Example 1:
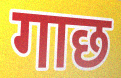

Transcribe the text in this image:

गाछ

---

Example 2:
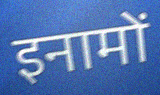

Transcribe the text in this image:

इनामों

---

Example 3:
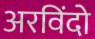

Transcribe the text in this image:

अरविंदो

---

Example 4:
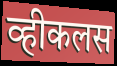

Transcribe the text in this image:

व्हीकलस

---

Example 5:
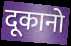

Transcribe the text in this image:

दूकानो